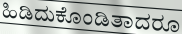
ಹಿಡಿದುಕೊಂಡಿತಾದರೂ